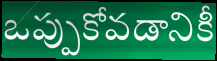
ఒప్పుకోవడానికీ